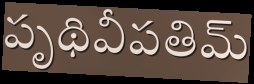
పృథివీపతిమ్